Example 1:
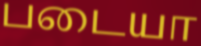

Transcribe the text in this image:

படையா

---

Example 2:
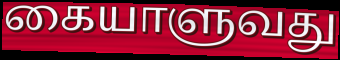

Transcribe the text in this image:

கையாளுவது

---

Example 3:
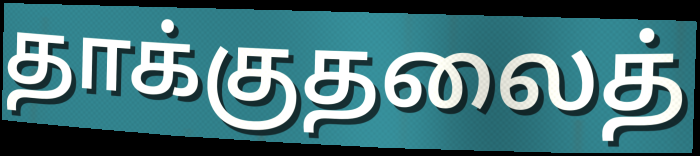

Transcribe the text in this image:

தாக்குதலைத்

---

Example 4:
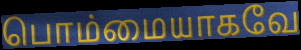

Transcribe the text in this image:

பொம்மையாகவே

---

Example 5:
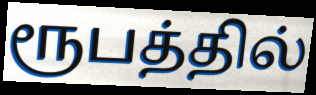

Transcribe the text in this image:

ரூபத்தில்